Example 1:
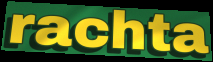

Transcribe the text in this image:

rachta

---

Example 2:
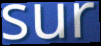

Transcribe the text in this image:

sur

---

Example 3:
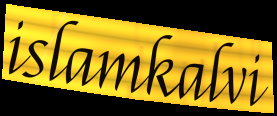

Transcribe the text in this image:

islamkalvi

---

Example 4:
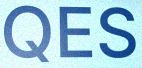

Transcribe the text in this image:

QES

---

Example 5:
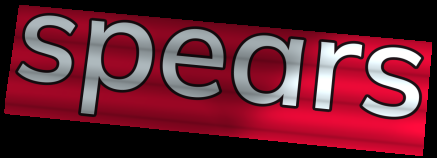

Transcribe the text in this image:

spears